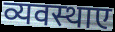
व्यवस्थाए